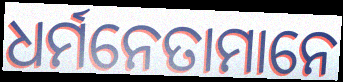
ଧର୍ମନେତାମାନେ